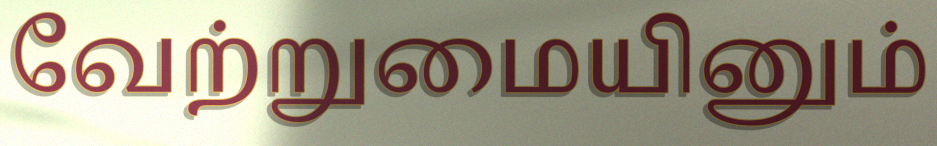
வேற்றுமையினும்